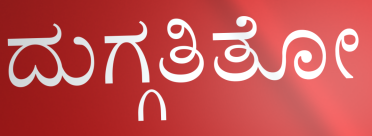
ದುಗ್ಗತಿತೋ